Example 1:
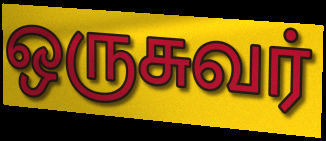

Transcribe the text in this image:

ஒருசுவர்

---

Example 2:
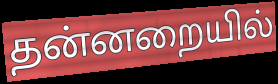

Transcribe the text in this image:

தன்னறையில்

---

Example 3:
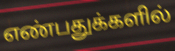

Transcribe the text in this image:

எண்பதுக்களில்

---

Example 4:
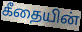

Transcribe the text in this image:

கீதையின்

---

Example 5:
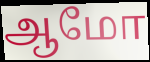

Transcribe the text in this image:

ஆமோ